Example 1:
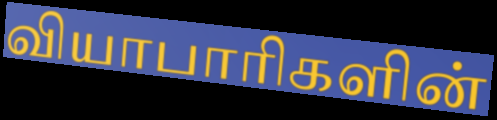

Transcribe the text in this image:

வியாபாரிகளின்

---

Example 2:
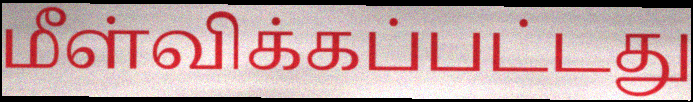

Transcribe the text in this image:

மீள்விக்கப்பட்டது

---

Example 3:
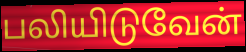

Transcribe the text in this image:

பலியிடுவேன்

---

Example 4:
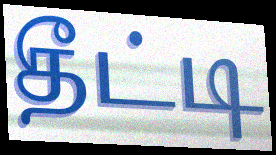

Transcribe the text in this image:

தீட்டி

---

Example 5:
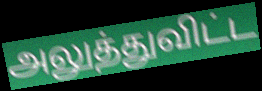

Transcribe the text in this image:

அலுத்துவிட்ட